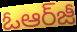
ఓఆర్‌జీ